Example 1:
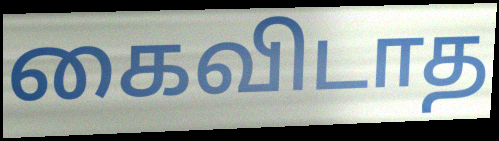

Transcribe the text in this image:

கைவிடாத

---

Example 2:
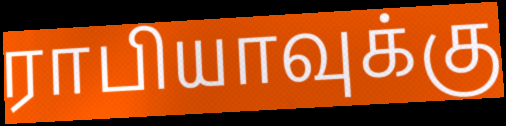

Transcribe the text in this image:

ராபியாவுக்கு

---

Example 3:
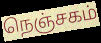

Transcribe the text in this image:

நெஞ்சகம்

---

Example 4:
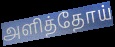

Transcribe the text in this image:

அளித்தோய்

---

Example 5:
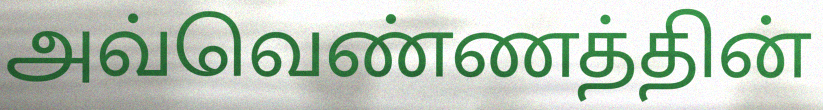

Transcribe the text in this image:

அவ்வெண்ணத்தின்